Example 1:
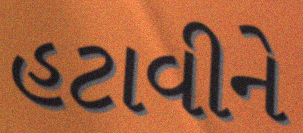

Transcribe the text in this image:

હટાવીને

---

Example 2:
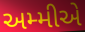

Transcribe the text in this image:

અમ્મીએ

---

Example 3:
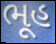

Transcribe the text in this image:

ભૂહ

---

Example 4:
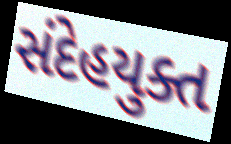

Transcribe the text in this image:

સંદેહયુક્ત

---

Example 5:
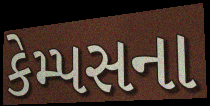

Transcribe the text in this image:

કેમ્પસના